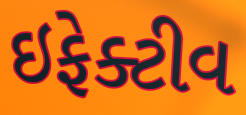
ઇફેક્ટીવ